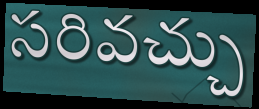
సరివచ్చు